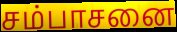
சம்பாசனை